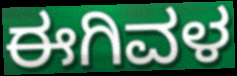
ಈಗಿವಳ